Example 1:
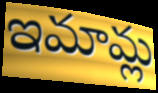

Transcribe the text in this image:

ఇమామ్ల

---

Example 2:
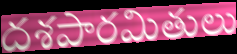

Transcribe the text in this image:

దశపారమితులు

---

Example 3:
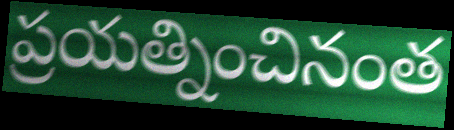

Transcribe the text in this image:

ప్రయత్నించినంత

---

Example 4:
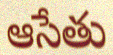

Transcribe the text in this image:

ఆసేతు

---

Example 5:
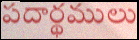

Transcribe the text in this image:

పదార్థములు